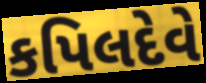
કપિલદેવે